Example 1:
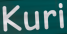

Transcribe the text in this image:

Kuri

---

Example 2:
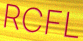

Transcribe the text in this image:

RCFL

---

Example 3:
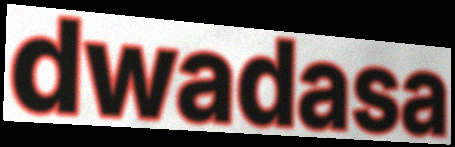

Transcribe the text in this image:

dwadasa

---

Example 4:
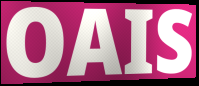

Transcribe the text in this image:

OAIS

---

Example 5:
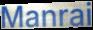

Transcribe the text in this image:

Manrai